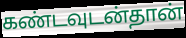
கண்டவுடன்தான்